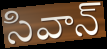
సివాన్